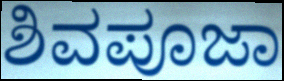
ಶಿವಪೂಜಾ